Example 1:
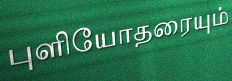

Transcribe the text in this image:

புளியோதரையும்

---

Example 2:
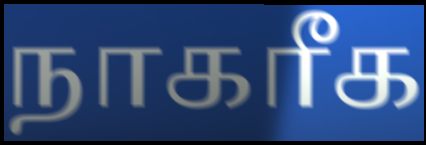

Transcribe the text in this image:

நாகரீக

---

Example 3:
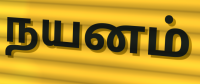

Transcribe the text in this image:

நயனம்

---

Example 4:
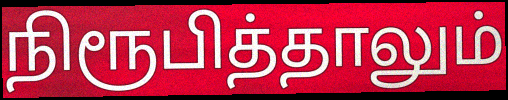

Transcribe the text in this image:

நிரூபித்தாலும்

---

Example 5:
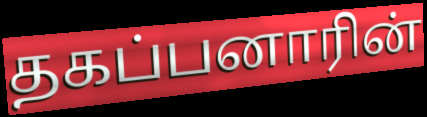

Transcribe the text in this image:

தகப்பனாரின்